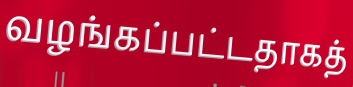
வழங்கப்பட்டதாகத்